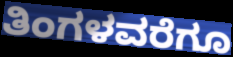
ತಿಂಗಳವರೆಗೂ